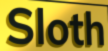
Sloth